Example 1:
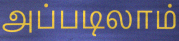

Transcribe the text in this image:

அப்படிலாம்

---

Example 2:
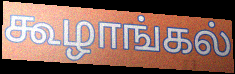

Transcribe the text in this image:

கூழாங்கல்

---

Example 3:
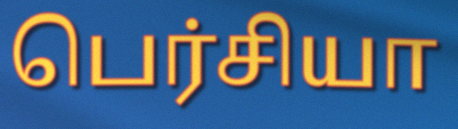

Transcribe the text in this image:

பெர்சியா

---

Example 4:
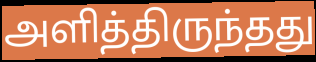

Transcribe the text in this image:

அளித்திருந்தது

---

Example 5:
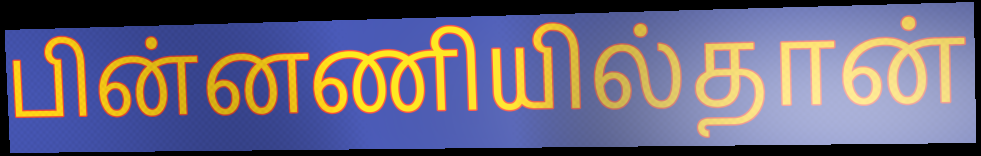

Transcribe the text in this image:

பின்னணியில்தான்